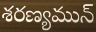
శరణ్యమున్